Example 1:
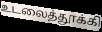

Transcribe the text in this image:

உடலைத்தூக்கி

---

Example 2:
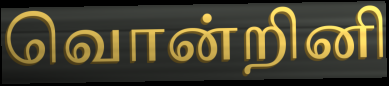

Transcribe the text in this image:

வொன்றினி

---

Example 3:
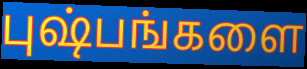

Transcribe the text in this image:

புஷ்பங்களை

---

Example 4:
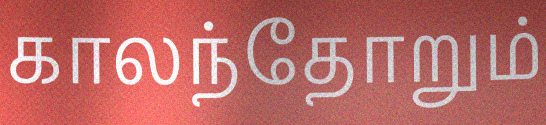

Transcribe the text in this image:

காலந்தோறும்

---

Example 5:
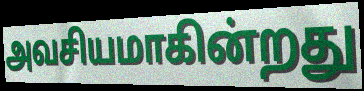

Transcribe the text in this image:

அவசியமாகின்றது